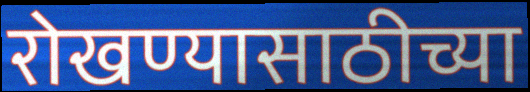
रोखण्यासाठीच्या